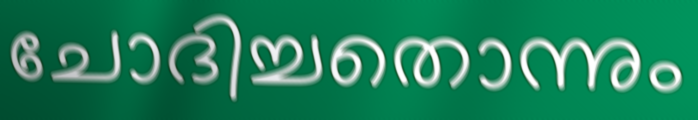
ചോദിച്ചതൊന്നും